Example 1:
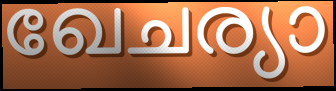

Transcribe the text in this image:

ഖേചര്യാ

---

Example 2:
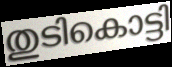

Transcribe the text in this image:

തുടികൊട്ടി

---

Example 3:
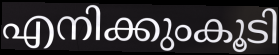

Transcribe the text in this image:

എനിക്കുംകൂടി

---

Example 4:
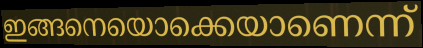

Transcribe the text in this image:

ഇങ്ങനെയൊക്കെയാണെന്ന്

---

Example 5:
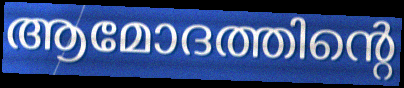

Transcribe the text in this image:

ആമോദത്തിന്റെ